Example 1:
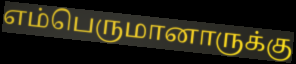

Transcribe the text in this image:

எம்பெருமானாருக்கு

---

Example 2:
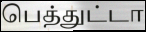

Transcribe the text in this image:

பெத்துட்டா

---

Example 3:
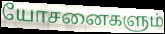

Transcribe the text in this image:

யோசனைகளும்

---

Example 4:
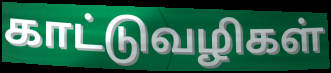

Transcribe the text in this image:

காட்டுவழிகள்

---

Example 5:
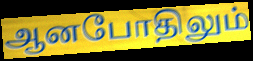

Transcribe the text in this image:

ஆனபோதிலும்